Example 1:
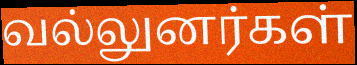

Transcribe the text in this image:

வல்லுனர்கள்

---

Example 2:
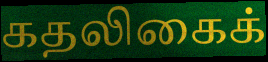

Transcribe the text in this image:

கதலிகைக்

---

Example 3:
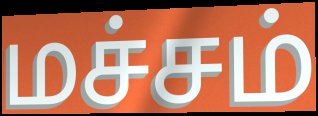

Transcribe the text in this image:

மச்சம்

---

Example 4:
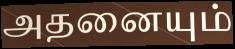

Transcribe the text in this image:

அதனையும்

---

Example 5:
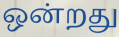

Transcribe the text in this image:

ஒன்றது